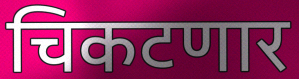
चिकटणार